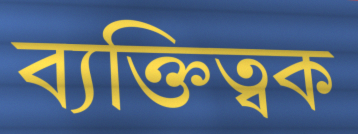
ব্যক্তিত্বক